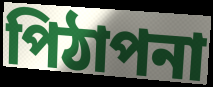
পিঠাপনা